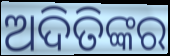
ଅଦିତିଙ୍କର